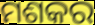
ମଶକର